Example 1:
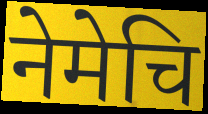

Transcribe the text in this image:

नेमेचि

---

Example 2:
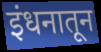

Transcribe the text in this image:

इंधनातून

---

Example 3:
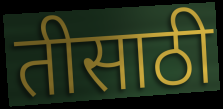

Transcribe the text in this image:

तीसाठी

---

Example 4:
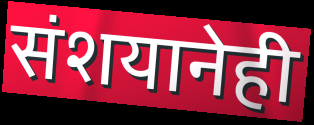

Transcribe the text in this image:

संशयानेही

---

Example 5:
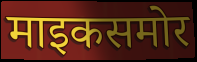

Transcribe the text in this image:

माइकसमोर